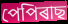
পেপিৰাছ